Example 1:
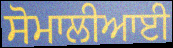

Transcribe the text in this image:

ਸੋਮਾਲੀਆਈ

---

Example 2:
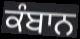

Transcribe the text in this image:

ਕੰਬਾਨ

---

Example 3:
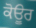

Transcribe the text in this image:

ਕੋਊਰ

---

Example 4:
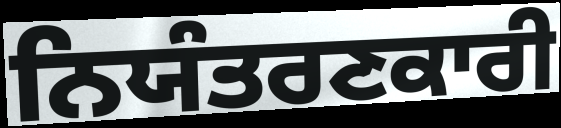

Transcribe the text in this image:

ਨਿਯੰਤਰਣਕਾਰੀ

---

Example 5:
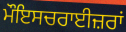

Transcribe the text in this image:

ਮੌਇਸਚਰਾਈਜ਼ਰਾਂ